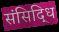
संसिद्धि